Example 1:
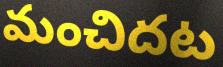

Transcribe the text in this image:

మంచిదట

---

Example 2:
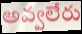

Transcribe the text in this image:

అవ్వలేరు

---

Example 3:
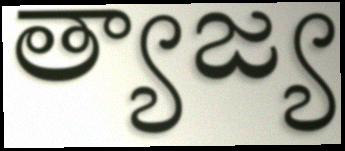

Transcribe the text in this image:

త్యాజ్య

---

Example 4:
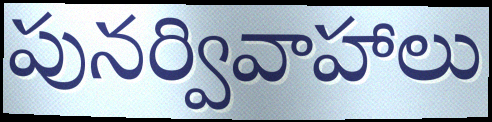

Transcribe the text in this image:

పునర్వివాహాలు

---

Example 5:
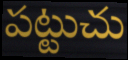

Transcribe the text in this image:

పట్టుచు